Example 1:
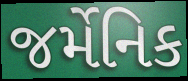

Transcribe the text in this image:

જર્મેનિક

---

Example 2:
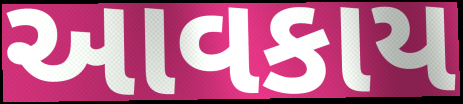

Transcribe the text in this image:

આવકાય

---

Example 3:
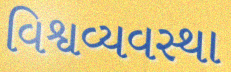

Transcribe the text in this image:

વિશ્વવ્યવસ્થા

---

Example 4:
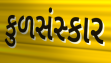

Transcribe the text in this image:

કુળસંસ્કાર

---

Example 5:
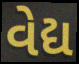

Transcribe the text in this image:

વેદ્ય